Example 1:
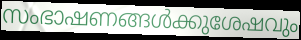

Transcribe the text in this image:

സംഭാഷണങ്ങൾക്കുശേഷവും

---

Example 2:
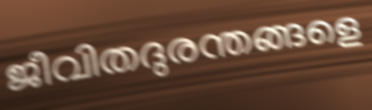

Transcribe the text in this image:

ജീവിതദുരന്തങ്ങളെ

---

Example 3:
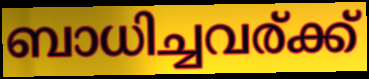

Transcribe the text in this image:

ബാധിച്ചവര്ക്ക്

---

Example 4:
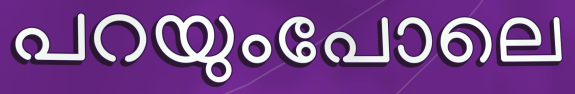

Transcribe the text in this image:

പറയുംപോലെ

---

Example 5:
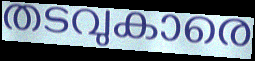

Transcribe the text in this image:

തടവുകാരെ